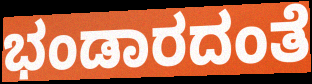
ಭಂಡಾರದಂತೆ